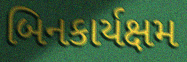
બિનકાર્યક્ષમ